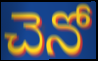
చెనో